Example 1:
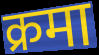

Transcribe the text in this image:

क्रमा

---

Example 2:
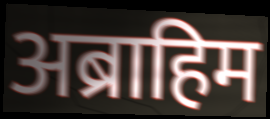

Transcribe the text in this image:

अब्राहिम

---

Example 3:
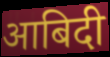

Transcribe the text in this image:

आबिदी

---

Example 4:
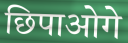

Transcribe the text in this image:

छिपाओगे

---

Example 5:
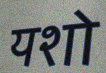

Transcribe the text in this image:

यशो